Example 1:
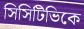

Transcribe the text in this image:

সিসিটিভিকে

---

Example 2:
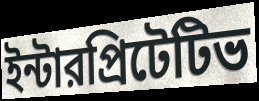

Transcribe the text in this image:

ইন্টারপ্রিটেটিভ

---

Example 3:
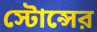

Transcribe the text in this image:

স্টোন্সের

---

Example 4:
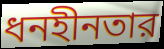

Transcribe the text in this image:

ধনহীনতার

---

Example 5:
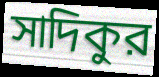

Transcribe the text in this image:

সাদিকুর